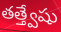
తత్త్వేషు